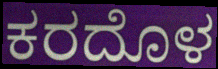
ಕರದೊಳ